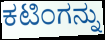
ಕಟಿಂಗನ್ನು